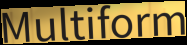
Multiform